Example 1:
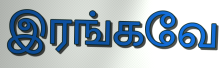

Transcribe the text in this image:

இரங்கவே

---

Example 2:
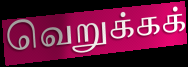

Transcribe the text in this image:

வெறுக்கக்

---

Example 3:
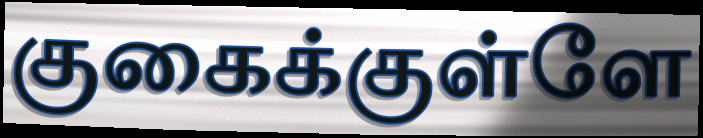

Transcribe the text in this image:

குகைக்குள்ளே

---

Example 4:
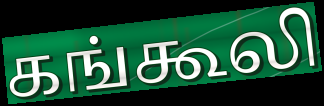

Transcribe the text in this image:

கங்கூலி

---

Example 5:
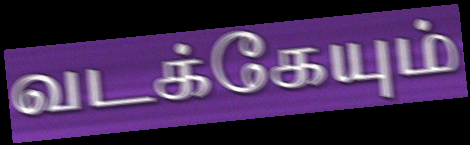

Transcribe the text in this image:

வடக்கேயும்